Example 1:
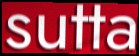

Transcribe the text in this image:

sutta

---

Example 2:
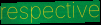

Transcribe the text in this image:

respective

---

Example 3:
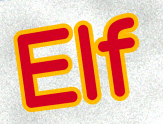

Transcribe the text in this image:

Elf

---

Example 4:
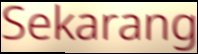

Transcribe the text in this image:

Sekarang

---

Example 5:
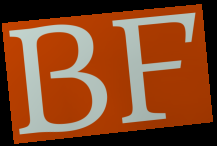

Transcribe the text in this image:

BF